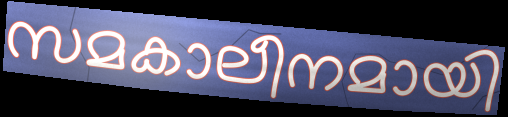
സമകാലീനമായി